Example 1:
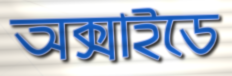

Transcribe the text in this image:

অক্সাইডে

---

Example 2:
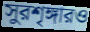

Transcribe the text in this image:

সুরশৃঙ্গারও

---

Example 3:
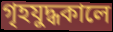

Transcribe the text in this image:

গৃহযুদ্ধকালে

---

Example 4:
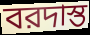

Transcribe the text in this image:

বরদাস্ত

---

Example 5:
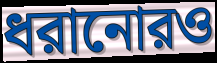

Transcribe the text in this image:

ধরানোরও